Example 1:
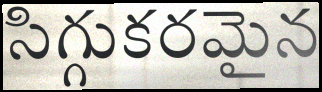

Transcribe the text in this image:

సిగ్గుకరమైన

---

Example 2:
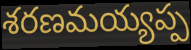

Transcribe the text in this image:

శరణమయ్యప్ప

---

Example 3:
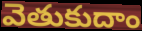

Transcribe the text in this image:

వెతుకుదాం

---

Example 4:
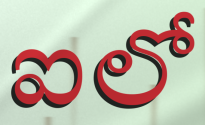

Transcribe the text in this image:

ఐలో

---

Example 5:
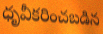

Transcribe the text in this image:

ధృవీకరించబడిన